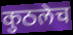
कुठलेच